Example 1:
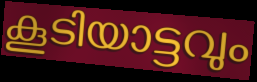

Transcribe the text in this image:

കൂടിയാട്ടവും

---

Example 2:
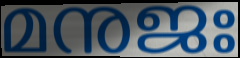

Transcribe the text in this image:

മനുജഃ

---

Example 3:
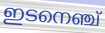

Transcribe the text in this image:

ഇടനെഞ്ച്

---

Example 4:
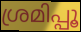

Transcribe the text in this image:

ശ്രമിപ്പൂ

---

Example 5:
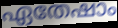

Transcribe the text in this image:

ഏതേഷാം